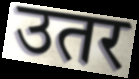
उतर